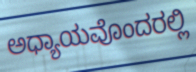
ಅಧ್ಯಾಯವೊಂದರಲ್ಲಿ